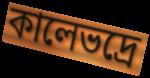
কালেভদ্রে